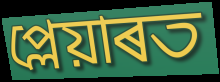
প্লেয়াৰত